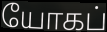
யோகப்